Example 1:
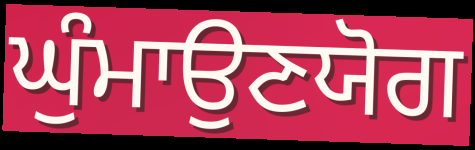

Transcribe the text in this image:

ਘੁੰਮਾਉਣਯੋਗ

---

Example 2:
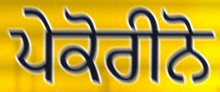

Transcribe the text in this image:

ਪੇਕੋਰੀਨੋ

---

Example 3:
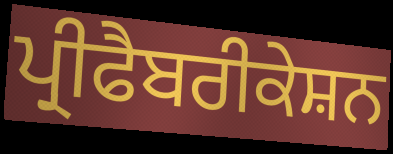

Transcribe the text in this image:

ਪ੍ਰੀਫੈਬਰੀਕੇਸ਼ਨ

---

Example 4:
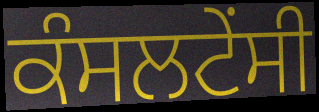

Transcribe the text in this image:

ਕੰਸਲਟੇਂਸੀ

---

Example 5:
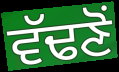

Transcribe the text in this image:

ਵੱਢਣੋਂ